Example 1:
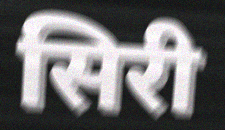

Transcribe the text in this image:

सिरी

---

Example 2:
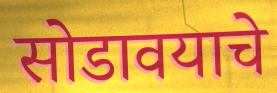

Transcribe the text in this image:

सोडावयाचे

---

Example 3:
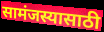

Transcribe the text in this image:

सामंजस्यासाठी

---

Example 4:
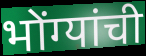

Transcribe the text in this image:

भोंग्यांची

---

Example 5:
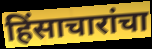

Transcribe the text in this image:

हिंसाचारांचा